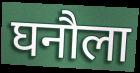
घनौला